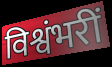
विश्वंभरीं